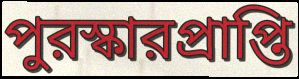
পুরস্কারপ্রাপ্তি